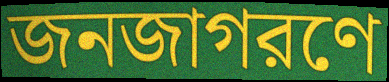
জনজাগরণে